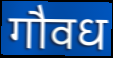
गौवध